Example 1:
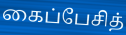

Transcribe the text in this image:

கைப்பேசித்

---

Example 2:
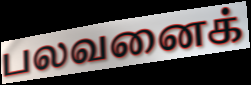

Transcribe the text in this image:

பலவனைக்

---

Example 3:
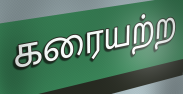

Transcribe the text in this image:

கரையற்ற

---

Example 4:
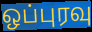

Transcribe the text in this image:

ஒப்புரவு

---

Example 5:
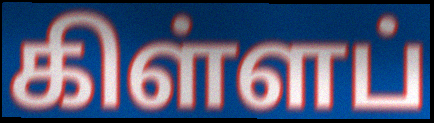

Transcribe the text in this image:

கிள்ளப்